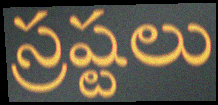
స్రష్టలు